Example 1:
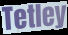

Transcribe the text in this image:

Tetley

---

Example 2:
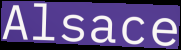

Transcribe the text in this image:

Alsace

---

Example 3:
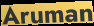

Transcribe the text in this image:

Aruman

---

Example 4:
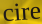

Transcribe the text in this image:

cire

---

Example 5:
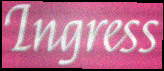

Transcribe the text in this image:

Ingress